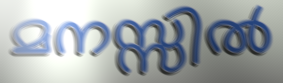
മനസ്സിൽ